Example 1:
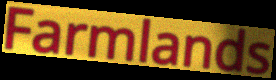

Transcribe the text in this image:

Farmlands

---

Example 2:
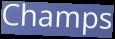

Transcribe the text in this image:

Champs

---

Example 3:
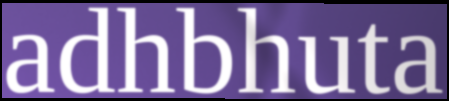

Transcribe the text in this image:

adhbhuta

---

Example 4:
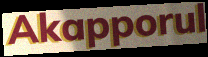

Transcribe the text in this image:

Akapporul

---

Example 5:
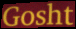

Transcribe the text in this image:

Gosht